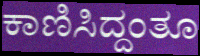
ಕಾಣಿಸಿದ್ದಂತೂ